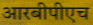
आरबीपीएच